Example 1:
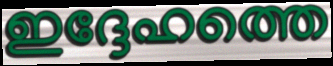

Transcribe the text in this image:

ഇദ്ദേഹത്തെ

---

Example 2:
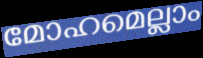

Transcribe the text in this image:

മോഹമെല്ലാം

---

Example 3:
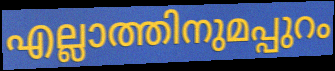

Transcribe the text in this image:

എല്ലാത്തിനുമപ്പുറം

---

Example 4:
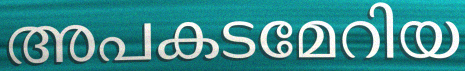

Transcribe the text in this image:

അപകടമേറിയ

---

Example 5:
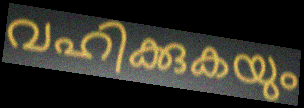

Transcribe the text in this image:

വഹിക്കുകയും